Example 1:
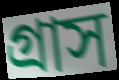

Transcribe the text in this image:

গ্ৰাস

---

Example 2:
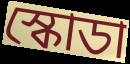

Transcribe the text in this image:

স্কোডা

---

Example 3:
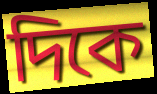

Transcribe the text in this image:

দিকে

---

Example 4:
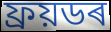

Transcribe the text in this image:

ফ্ৰয়ডৰ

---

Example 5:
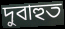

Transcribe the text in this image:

দুবাহুত